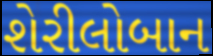
શેરીલોબાન